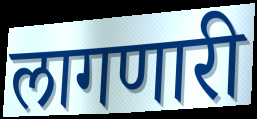
लागणारी